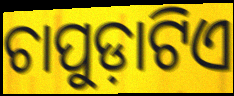
ଚାପୁଡ଼ାଟିଏ